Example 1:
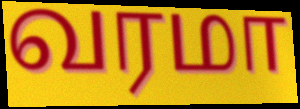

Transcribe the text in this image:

வரமா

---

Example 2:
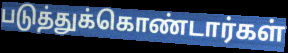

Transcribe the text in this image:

படுத்துக்கொண்டார்கள்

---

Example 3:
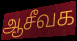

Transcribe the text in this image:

ஆசீவக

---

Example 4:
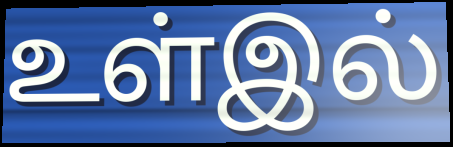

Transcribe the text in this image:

உள்இல்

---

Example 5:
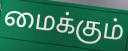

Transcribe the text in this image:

மைக்கும்